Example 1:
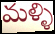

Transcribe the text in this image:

మళ్ళి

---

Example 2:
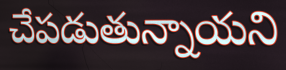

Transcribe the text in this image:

చేపడుతున్నాయని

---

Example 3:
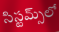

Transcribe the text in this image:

సిస్టమ్స్‌లో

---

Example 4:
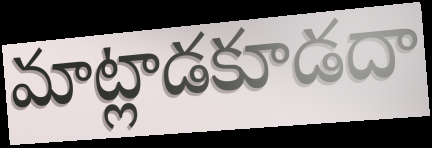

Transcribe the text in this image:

మాట్లాడకూడదా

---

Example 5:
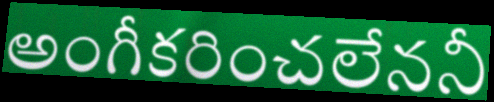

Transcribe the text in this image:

అంగీకరించలేననీ